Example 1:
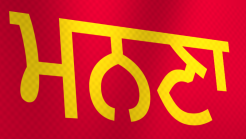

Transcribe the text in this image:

ਮਨਣਾ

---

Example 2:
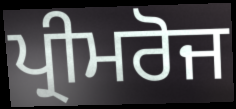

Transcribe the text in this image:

ਪ੍ਰੀਮਰੋਜ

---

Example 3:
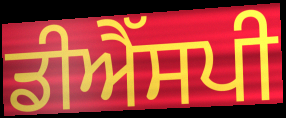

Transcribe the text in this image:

ਡੀਐੱਸਪੀ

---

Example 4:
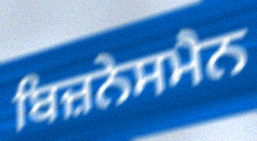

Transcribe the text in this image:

ਬਿਜ਼ਨੇਸਮੈਨ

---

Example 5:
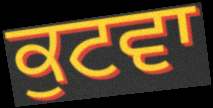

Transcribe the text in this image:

ਕੁਟਵਾ